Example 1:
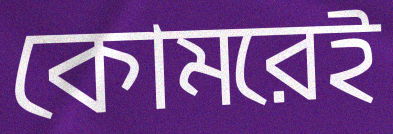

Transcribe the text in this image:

কোমরেই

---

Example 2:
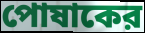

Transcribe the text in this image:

পোষাকের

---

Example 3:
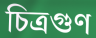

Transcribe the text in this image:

চিত্রগুণ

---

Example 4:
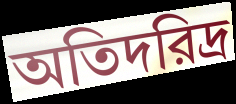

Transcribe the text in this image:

অতিদরিদ্র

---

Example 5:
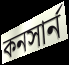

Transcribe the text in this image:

কনসার্ন